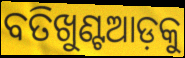
ବତିଖୁଣ୍ଟଆଡ଼କୁ